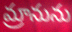
మ్రానును